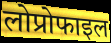
लोप्रोफाइल